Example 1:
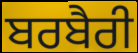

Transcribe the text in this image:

ਬਰਬੈਰੀ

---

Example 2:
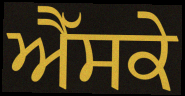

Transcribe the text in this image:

ਐੱਸਕੇ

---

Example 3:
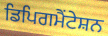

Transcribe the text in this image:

ਡਿਪਿਗਮੈਂਟੇਸ਼ਨ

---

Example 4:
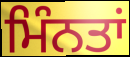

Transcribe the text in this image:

ਮਿੰਨਤਾਂ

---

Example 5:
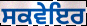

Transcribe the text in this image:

ਸਕਵੇਇਰ